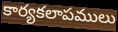
కార్యకలాపములు